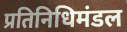
प्रतिनिधिमंडल